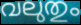
വലുതും